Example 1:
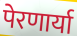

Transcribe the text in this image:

पेरणार्या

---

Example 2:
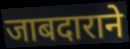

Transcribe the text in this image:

जाबदाराने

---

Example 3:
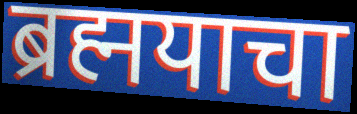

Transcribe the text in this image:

ब्रह्मयाचा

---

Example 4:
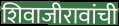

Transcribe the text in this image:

शिवाजीरावांची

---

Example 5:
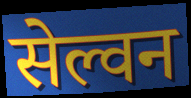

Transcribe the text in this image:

सेल्वन